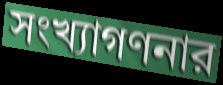
সংখ্যাগণনার